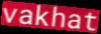
vakhat